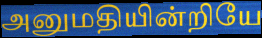
அனுமதியின்றியே